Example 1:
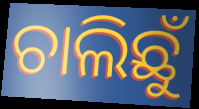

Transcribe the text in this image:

ଚାଲିଛୁଁ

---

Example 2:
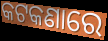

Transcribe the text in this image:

କଟକଣାରେ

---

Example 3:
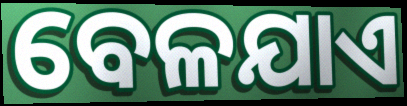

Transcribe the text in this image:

ବେଳଯାଏ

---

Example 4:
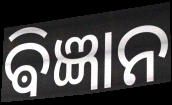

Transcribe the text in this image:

ଵିଜ୍ଞାନ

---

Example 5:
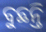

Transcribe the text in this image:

ବୁଛନ୍ତି